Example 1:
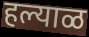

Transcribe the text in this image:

हल्याळ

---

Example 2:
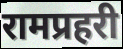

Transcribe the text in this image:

रामप्रहरी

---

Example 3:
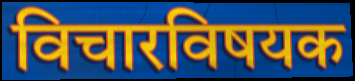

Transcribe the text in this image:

विचारविषयक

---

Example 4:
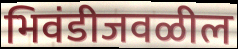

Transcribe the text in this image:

भिवंडीजवळील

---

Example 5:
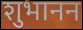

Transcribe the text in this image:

शुभानन